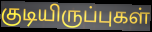
குடியிருப்புகள்